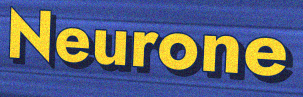
Neurone